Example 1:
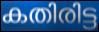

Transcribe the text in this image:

കതിരിട്ട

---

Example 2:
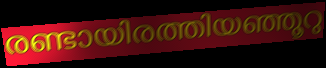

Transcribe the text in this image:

രണ്ടായിരത്തിയഞ്ഞൂറു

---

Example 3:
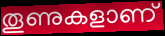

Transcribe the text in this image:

തൂണുകളാണ്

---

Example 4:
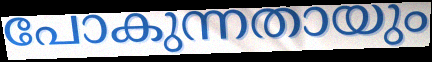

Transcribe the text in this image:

പോകുന്നതായും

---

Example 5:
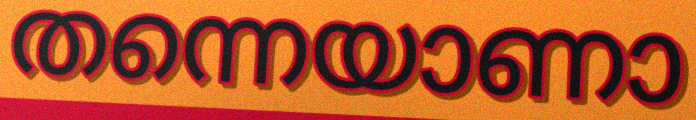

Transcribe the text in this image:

തന്നെയാണാ